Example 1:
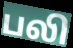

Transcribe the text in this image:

பலி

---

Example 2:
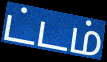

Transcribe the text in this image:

ட்டம்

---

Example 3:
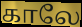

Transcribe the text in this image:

காலே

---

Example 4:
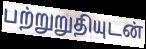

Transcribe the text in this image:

பற்றுறுதியுடன்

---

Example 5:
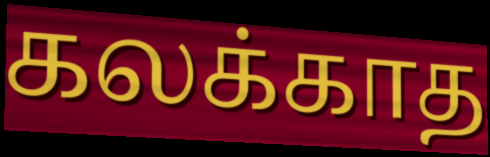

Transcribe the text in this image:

கலக்காத